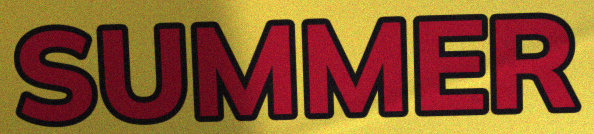
SUMMER